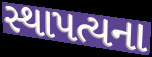
સ્થાપત્યના